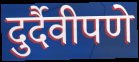
दुर्दैवीपणे